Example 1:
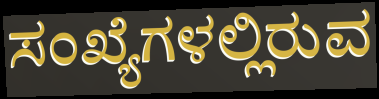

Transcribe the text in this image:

ಸಂಖ್ಯೆಗಳಲ್ಲಿರುವ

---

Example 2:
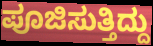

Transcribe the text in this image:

ಪೂಜಿಸುತ್ತಿದ್ದು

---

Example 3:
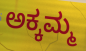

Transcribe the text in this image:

ಅಕ್ಕಮ್ಮ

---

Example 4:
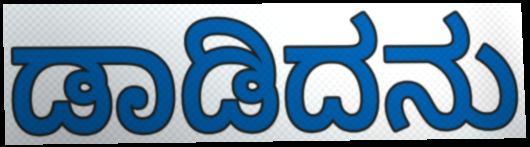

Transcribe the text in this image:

ಡಾಡಿದನು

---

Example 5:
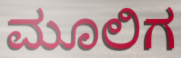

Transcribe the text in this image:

ಮೂಲಿಗ